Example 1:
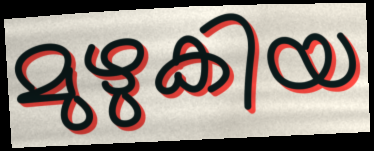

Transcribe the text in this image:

മുഴുകിയ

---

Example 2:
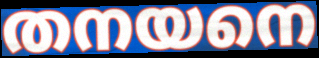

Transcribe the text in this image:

തനയനെ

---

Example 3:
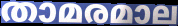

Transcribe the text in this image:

താമരമാല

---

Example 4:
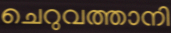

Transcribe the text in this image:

ചെറുവത്താനി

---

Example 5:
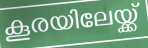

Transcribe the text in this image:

കൂരയിലേയ്ക്ക്